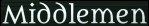
Middlemen